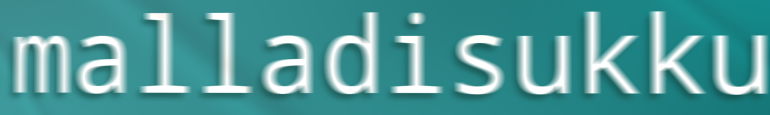
malladisukku